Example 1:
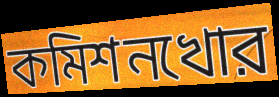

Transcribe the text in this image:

কমিশনখোর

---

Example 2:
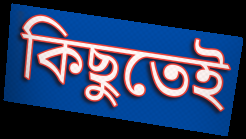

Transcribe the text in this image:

কিছুতেই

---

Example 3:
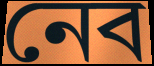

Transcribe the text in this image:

নেব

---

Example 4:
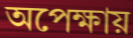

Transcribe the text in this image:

অপেক্ষায়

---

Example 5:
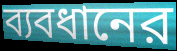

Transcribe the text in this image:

ব্যবধানের